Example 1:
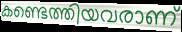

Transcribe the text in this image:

കണ്ടെത്തിയവരാണ്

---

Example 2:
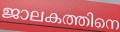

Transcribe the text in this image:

ജാലകത്തിനെ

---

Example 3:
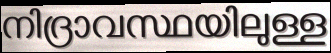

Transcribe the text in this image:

നിദ്രാവസ്ഥയിലുള്ള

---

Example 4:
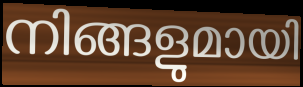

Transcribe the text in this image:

നിങ്ങളുമായി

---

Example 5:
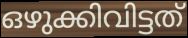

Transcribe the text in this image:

ഒഴുക്കിവിട്ടത്